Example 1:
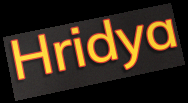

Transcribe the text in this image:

Hridya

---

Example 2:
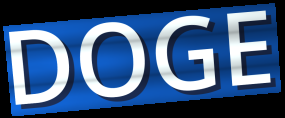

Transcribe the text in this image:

DOGE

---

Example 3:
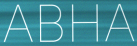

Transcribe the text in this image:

ABHA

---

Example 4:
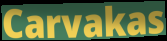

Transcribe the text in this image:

Carvakas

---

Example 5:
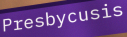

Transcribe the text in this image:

Presbycusis